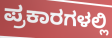
ಪ್ರಕಾರಗಳಲ್ಲಿ